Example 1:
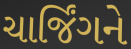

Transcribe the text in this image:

ચાર્જિંગને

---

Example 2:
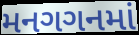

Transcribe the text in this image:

મનગગનમાં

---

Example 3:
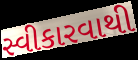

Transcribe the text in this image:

સ્વીકારવાથી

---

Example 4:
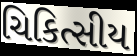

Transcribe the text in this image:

ચિકિત્સીય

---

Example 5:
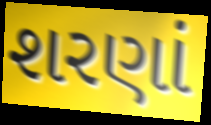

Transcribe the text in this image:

શરણાં